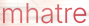
mhatre